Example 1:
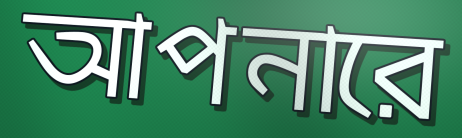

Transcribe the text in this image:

আপনারে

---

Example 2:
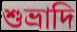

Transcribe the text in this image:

শুভ্রাদি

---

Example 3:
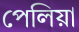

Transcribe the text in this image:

পেলিয়া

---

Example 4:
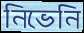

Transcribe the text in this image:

নিভেনি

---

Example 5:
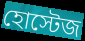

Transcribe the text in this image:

হোস্টেজ